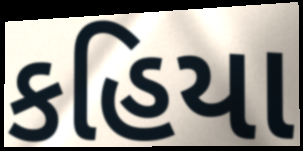
કહિયા